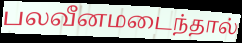
பலவீனமடைந்தால்